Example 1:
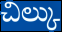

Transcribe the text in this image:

చిల్కు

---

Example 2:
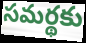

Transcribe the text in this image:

సమర్థకు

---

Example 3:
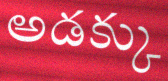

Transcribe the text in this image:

అడక్కు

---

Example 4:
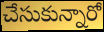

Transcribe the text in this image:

చేసుకున్నారో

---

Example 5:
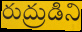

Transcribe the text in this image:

రుద్రుడిని